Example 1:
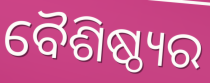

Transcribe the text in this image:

ବୈଶିଷ୍ଠ୍ୟର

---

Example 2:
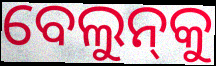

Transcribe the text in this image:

ବେଲୁନ୍‌କୁ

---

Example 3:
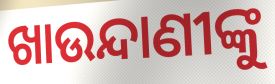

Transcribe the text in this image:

ଖାଉନ୍ଦାଣୀଙ୍କୁ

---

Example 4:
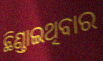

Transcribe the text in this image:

ଛିଣ୍ଡାଇଥିବାର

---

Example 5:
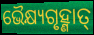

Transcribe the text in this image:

ଭୈକ୍ଷ୍ୟଗୃହ୍ଣାତ୍